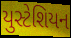
યુસ્ટેશિયન